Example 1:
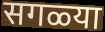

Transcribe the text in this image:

सगळ्या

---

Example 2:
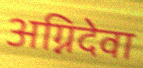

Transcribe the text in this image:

अग्निदेवा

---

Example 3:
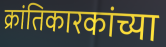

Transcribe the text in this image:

क्रांतिकारकांच्या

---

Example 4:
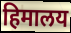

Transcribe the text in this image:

हिमालय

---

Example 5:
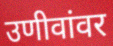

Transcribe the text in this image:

उणीवांवर